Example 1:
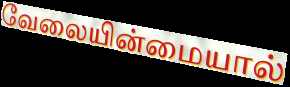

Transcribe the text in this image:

வேலையின்மையால்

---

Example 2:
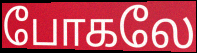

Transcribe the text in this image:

போகலே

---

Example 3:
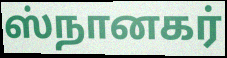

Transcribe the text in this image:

ஸ்நானகர்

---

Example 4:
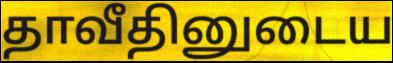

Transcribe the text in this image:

தாவீதினுடைய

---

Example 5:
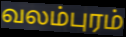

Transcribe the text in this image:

வலம்புரம்